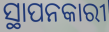
ସ୍ଥାପନକାରୀ